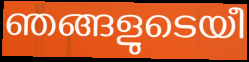
ഞങ്ങളുടെയീ